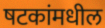
षटकांमधील